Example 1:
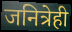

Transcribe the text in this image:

जनित्रेही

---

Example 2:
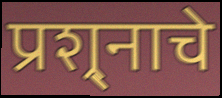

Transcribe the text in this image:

प्रश्र्नाचे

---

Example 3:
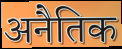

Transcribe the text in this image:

अनैतिक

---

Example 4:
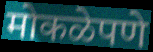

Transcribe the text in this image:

मोकळेपणे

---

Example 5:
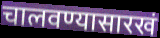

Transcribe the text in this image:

चालवण्यासारखं